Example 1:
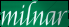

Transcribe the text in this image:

milnar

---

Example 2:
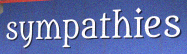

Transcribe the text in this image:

sympathies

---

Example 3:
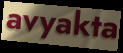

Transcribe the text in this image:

avyakta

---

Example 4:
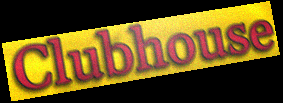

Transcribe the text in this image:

Clubhouse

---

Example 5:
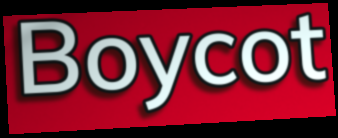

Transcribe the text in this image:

Boycot